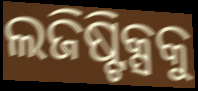
ଲଜିଷ୍ଟିକ୍ସକୁ